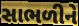
સાભળીને